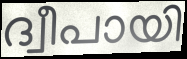
ദ്വീപായി